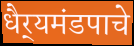
धैर्यमंडपाचे